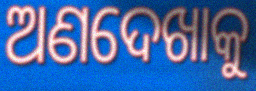
ଅଣଦେଖାକୁ